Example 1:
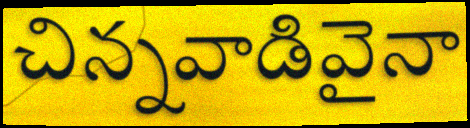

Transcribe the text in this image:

చిన్నవాడివైనా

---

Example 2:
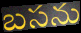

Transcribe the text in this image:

బసను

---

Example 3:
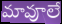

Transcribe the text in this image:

మావూలే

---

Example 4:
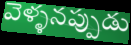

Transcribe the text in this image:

వెళ్ళనప్పుడు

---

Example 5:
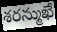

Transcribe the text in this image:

శరన్ముఖే